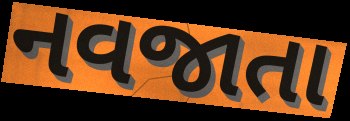
નવજાતા